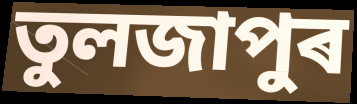
তুলজাপুৰ